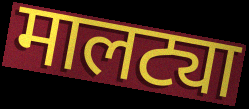
मालट्या